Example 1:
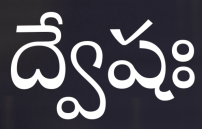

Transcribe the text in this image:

ద్వేషః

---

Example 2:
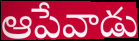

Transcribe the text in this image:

ఆపేవాడు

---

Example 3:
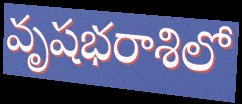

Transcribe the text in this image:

వృషభరాశిలో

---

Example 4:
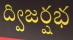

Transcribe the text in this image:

ద్విజర్షభ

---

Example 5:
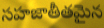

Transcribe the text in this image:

సహజాతీతమైన